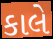
કાલે